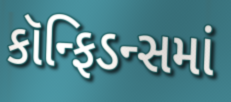
કૉન્ફિડન્સમાં